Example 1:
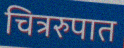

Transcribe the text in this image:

चित्ररुपात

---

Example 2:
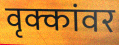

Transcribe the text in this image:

वृक्कांवर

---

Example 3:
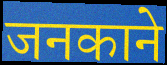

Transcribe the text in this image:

जनकाने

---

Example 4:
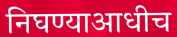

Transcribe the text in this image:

निघण्याआधीच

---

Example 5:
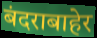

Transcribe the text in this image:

बंदराबाहेर